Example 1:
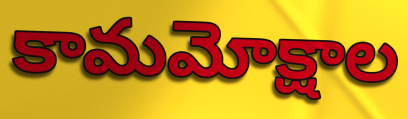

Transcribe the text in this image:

కామమోక్షాల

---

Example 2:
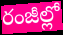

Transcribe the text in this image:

రంజీల్లో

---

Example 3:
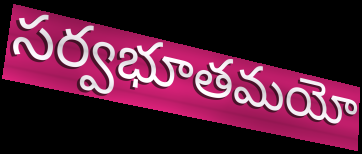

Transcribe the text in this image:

సర్వభూతమయో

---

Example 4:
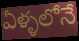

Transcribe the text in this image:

ఏళ్ళలోనే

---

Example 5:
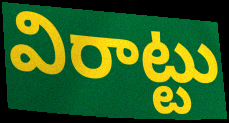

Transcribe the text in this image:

విరాట్టు